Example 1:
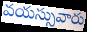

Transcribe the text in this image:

వయస్సువారు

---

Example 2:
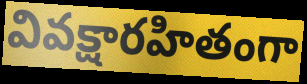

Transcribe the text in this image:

వివక్షారహితంగా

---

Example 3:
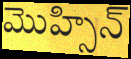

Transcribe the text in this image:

మొహ్సిన్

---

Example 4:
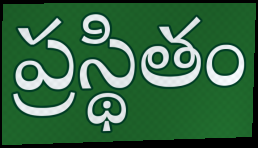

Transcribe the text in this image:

ప్రస్థితం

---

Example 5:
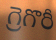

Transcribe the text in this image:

గ్రెగొరీ